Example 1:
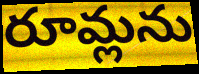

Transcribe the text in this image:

రూమ్లను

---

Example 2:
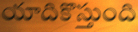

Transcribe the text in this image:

యాదికొస్తుంది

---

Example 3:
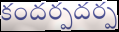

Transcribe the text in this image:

కందర్పదర్ప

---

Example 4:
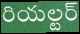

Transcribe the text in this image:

రియల్టర్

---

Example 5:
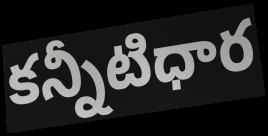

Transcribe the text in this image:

కన్నీటిధార